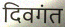
दिवगंत